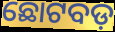
ଛୋଟବଡ଼